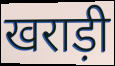
खराड़ी